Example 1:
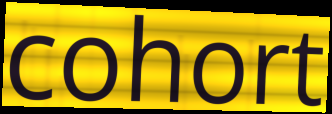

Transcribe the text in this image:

cohort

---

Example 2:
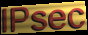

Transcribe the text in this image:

IPsec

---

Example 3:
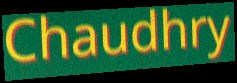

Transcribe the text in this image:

Chaudhry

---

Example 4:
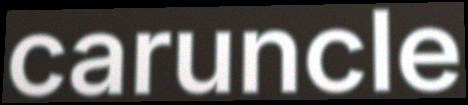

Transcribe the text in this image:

caruncle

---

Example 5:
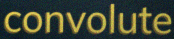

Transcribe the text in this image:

convolute